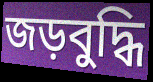
জড়বুদ্ধি